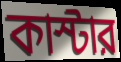
কাস্টার